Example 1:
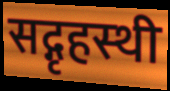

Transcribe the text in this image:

सद्गृहस्थी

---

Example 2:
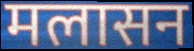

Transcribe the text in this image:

मलासन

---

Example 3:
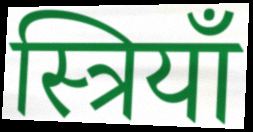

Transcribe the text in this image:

स्त्रियाँ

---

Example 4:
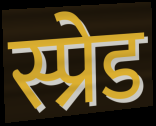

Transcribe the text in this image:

स्‍प्रेड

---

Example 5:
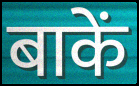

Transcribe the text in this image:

बाकें